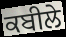
ਕਬੀਲੇ